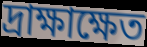
দ্রাক্ষাক্ষেত